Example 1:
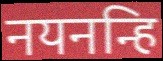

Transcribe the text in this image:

नयनन्हि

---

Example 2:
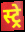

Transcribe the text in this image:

स्ट्रे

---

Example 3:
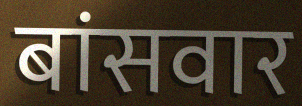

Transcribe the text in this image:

बांसवार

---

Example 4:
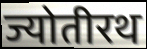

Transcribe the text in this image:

ज्योतीरथ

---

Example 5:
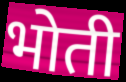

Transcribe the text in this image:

भोती